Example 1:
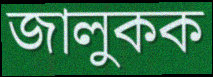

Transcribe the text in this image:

জালুকক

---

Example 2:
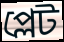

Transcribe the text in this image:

প্লেট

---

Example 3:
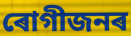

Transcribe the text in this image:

ৰোগীজনৰ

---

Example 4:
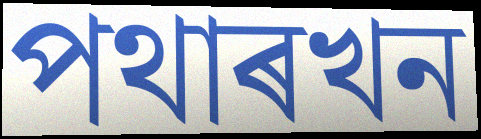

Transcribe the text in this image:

পথাৰখন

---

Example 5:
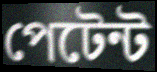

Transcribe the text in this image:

পেটেন্ট